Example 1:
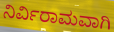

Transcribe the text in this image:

ನಿರ್ವಿರಾಮವಾಗಿ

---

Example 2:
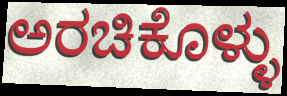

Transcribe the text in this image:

ಅರಚಿಕೊಳ್ಳು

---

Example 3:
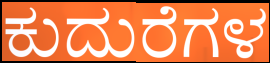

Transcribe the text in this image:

ಕುದುರೆಗಳ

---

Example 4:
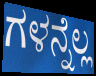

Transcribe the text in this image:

ಗಳನ್ನೆಲ್ಲ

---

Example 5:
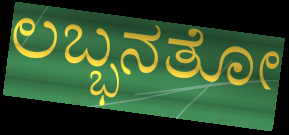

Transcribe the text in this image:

ಲಬ್ಭನತೋ